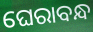
ଘେରାବନ୍ଧ